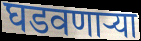
घडवणार्‍या